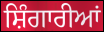
ਸ਼ਿੰਗਾਰੀਆਂ